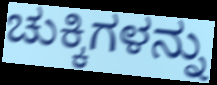
ಚುಕ್ಕಿಗಳನ್ನು